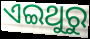
ଏଇଥୁରୁ